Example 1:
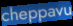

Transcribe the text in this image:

cheppavu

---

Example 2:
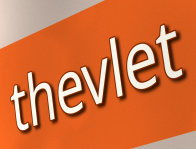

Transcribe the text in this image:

thevlet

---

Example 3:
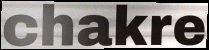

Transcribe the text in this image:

chakre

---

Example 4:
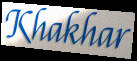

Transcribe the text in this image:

Khakhar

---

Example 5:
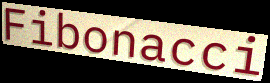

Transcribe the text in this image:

Fibonacci